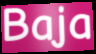
Baja